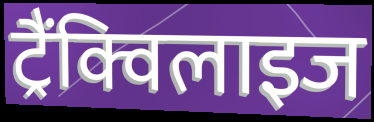
ट्रैंक्विलाइज